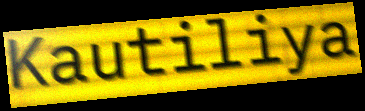
Kautiliya